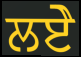
ਲਏੇ